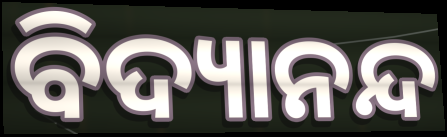
ବିଦ୍ୟାନନ୍ଦ